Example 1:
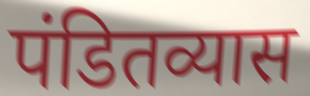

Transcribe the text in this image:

पंडितव्यास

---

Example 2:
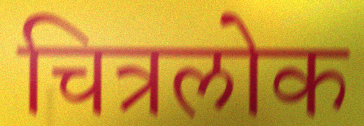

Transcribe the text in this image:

चित्रलोक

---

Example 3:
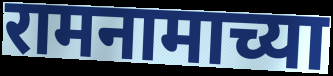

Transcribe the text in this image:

रामनामाच्या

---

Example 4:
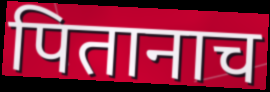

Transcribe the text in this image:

पितानाच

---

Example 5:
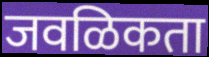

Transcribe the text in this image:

जवळिकता